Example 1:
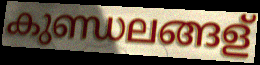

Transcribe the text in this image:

കുണ്ഡലങ്ങള്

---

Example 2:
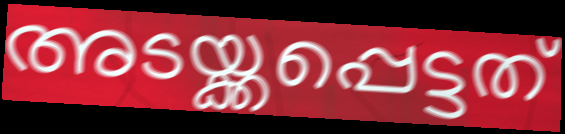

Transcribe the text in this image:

അടയ്ക്കപ്പെട്ടത്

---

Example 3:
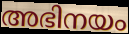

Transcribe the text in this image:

അഭിനയം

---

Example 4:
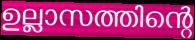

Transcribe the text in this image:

ഉല്ലാസത്തിന്റെ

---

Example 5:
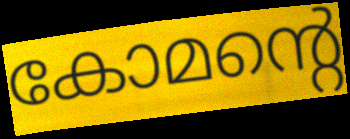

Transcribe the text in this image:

കോമന്റെ